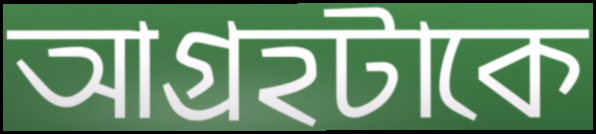
আগ্রহটাকে